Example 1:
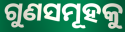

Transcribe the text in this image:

ଗୁଣସମୂହକୁ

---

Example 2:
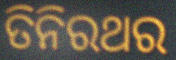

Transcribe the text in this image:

ତିନିରଥର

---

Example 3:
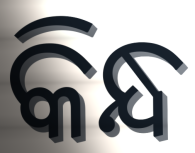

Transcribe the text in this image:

କିନ୍ଧ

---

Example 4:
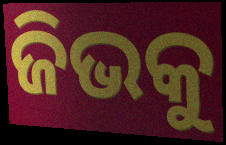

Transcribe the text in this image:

ଜିଭକୁ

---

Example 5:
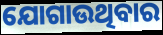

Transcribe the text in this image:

ଯୋଗାଉଥିବାର